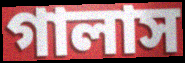
গালাস